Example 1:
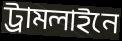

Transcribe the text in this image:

ট্রামলাইনে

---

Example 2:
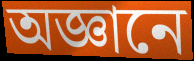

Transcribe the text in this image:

অজ্ঞানে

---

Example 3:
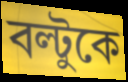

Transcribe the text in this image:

বল্টুকে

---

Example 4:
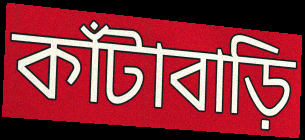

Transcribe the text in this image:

কাঁটাবাড়ি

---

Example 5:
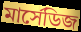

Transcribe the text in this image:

মার্সেডিজ